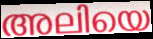
അലിയെ